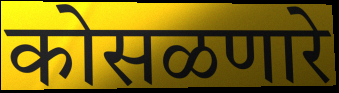
कोसळणारे